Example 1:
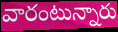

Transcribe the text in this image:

వారంటున్నారు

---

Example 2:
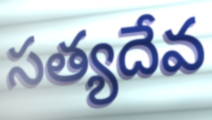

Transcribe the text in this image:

సత్యదేవ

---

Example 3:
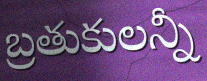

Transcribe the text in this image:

బ్రతుకులన్నీ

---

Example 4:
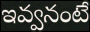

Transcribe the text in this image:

ఇవ్వనంటే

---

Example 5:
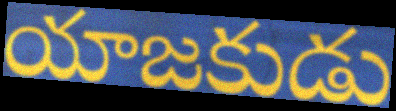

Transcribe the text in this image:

యాజకుడు